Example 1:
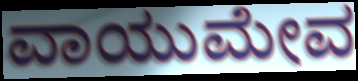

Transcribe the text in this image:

ವಾಯುಮೇವ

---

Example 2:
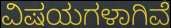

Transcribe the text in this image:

ವಿಷಯಗಳಾಗಿವೆ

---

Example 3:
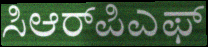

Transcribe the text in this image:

ಸಿಆರ್‌ಪಿಎಫ್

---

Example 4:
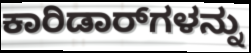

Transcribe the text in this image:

ಕಾರಿಡಾರ್‌ಗಳನ್ನು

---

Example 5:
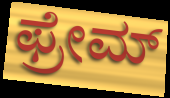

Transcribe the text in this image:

ಫ್ರೇಮ್